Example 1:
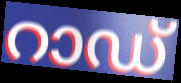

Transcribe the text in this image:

റാഡ്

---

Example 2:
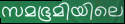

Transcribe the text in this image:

സമഭൂമിയിലെ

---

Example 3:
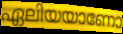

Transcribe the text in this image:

ഏലിയയാണോ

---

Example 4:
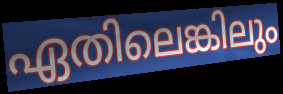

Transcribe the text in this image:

ഏതിലെങ്കിലും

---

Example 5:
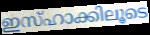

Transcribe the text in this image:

ഇസ്ഹാക്കിലൂടെ